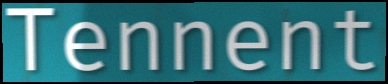
Tennent